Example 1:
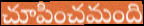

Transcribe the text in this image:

చూపించమంది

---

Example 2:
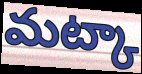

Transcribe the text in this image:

మట్కా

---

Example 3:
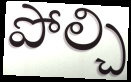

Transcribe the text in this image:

పోల్చి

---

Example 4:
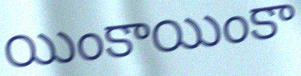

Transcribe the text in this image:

యింకాయింకా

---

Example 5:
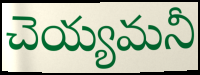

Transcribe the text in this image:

చెయ్యమనీ